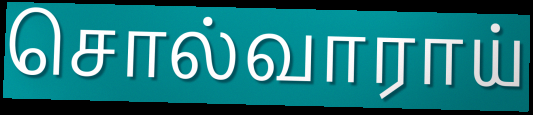
சொல்வாராய்